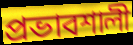
প্রভাবশালী